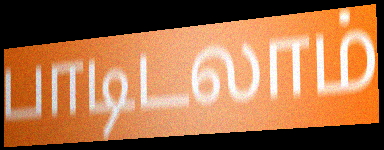
பாடிடலாம்